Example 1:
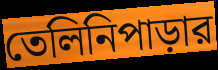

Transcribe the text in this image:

তেলিনিপাড়ার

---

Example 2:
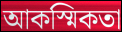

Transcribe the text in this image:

আকস্মিকতা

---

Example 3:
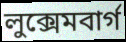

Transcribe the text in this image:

লুক্সেমবার্গ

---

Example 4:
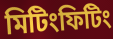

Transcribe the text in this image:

মিটিংফিটিং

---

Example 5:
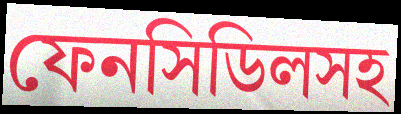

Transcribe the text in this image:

ফেনসিডিলসহ